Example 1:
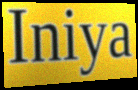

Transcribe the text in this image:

Iniya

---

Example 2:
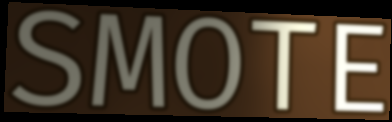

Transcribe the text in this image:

SMOTE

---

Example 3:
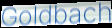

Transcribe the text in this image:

Goldbach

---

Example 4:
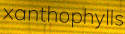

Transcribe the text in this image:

xanthophylls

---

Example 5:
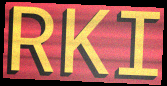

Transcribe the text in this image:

RKI